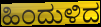
ಹಿಂದುಳಿದ